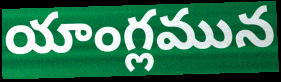
యాంగ్లమున